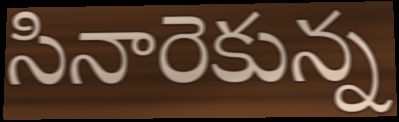
సినారెకున్న